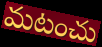
మటంచు